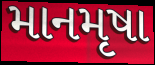
માનમૃષા